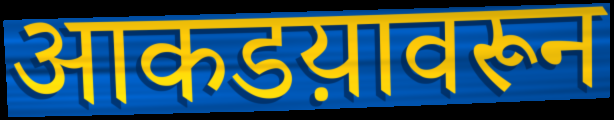
आकडय़ावरून